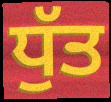
ਧੁੱਤ